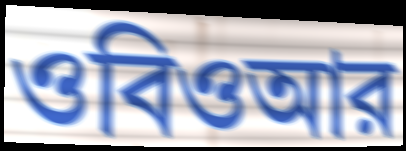
ওবিওআর